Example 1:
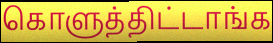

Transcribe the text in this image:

கொளுத்திட்டாங்க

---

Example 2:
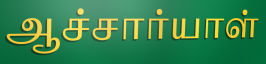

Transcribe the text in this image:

ஆச்சார்யாள்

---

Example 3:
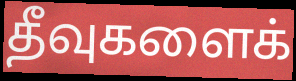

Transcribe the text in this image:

தீவுகளைக்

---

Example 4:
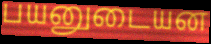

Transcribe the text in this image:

பயனுடையன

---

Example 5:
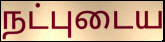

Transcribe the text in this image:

நட்புடைய